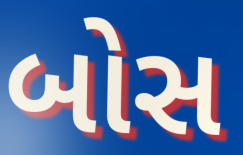
બોસ